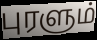
புரளும்